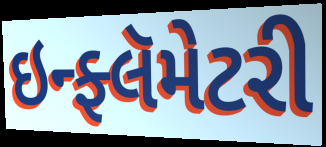
ઇન્ફ્લૅમેટરી